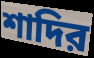
শাদির